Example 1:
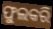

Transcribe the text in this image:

ଫୁଲକରି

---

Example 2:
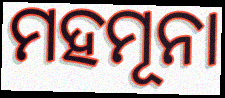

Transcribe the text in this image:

ମହମୂନା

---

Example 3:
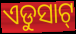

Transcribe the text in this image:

ଏଡୁସାଟ୍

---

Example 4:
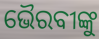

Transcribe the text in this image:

ଭୈରବୀଙ୍କୁ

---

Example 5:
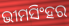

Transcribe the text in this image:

ଭୀମସିଂହର